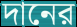
দানের